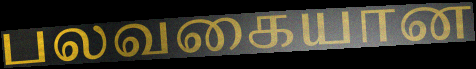
பலவகையான